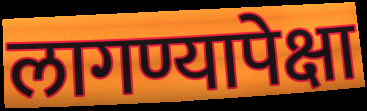
लागण्यापेक्षा